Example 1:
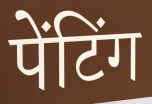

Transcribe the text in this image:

पेंटिंग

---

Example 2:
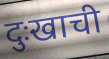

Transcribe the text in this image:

दुःखाची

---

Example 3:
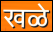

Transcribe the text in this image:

खळे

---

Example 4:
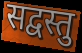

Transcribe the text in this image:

सद्वस्तु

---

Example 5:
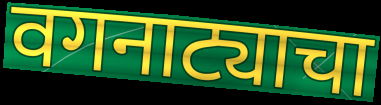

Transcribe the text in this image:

वगनाट्याचा